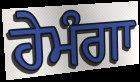
ਹੇਮੰਗਾ